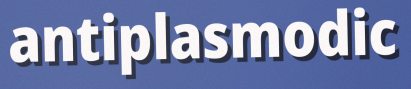
antiplasmodic